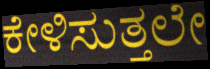
ಕೇಳಿಸುತ್ತಲೇ